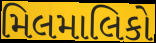
મિલમાલિકો